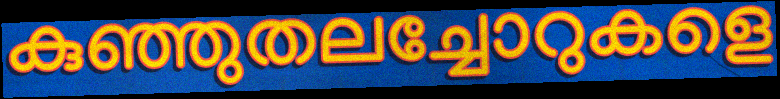
കുഞ്ഞുതലച്ചോറുകളെ